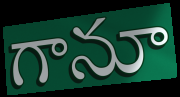
గానూ